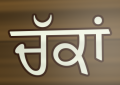
ਚੱਕਾਂ